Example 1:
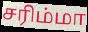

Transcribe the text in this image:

சரிம்மா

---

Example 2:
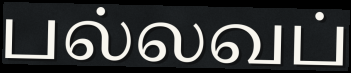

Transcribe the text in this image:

பல்லவப்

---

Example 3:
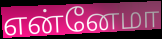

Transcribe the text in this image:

என்னேமா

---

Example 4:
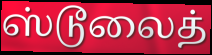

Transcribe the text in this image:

ஸ்டூலைத்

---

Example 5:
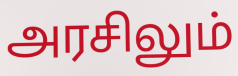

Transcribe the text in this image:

அரசிலும்